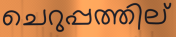
ചെറുപ്പത്തില്